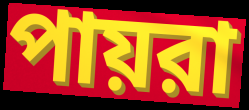
পায়রা